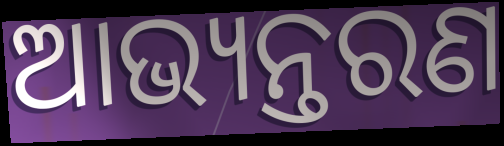
ଆଭ୍ୟନ୍ତରଣ